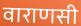
वाराणसी